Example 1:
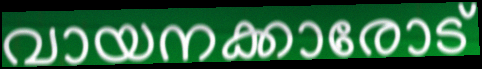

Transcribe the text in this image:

വായനക്കാരോട്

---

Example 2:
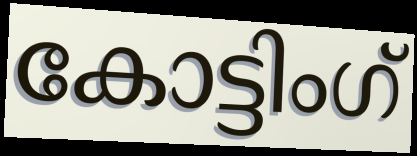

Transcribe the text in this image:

കോട്ടിംഗ്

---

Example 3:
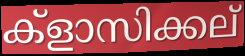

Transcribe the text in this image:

ക്ളാസിക്കല്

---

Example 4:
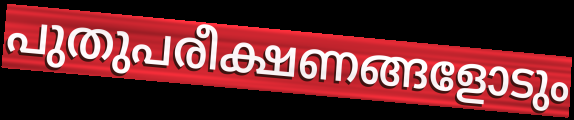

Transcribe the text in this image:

പുതുപരീക്ഷണങ്ങളോടും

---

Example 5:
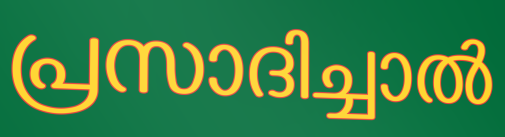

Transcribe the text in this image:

പ്രസാദിച്ചാൽ